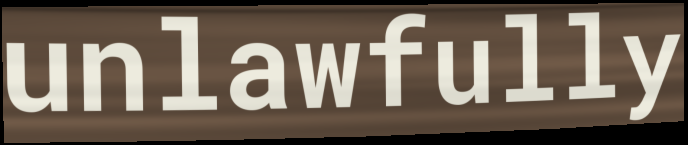
unlawfully